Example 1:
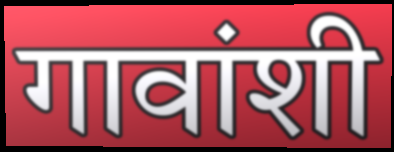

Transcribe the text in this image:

गावांशी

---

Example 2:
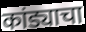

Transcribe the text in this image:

कांड्याचा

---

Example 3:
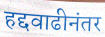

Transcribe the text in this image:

हद्दवाढीनंतर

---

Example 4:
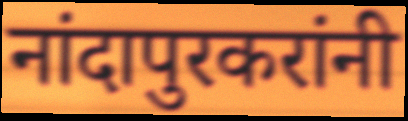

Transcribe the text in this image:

नांदापुरकरांनी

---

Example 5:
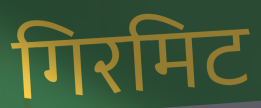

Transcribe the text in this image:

गिरमिट